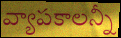
వ్యాపకాలన్నీ